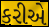
કરીએ